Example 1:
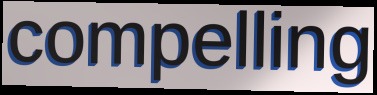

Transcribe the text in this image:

compelling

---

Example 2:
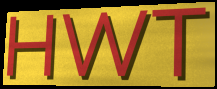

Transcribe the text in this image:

HWT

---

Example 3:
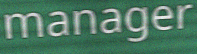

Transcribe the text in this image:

manager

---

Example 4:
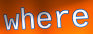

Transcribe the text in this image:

where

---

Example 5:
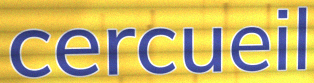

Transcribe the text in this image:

cercueil